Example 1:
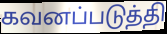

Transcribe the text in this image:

கவனப்படுத்தி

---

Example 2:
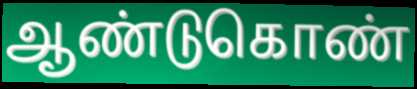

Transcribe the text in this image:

ஆண்டுகொண்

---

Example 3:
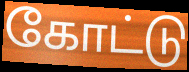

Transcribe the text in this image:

கோட்டு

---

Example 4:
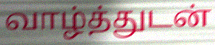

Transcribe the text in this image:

வாழ்த்துடன்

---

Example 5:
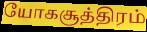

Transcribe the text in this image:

யோகசூத்திரம்